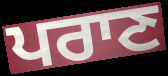
ਪਰਾਣ